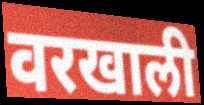
वरखाली